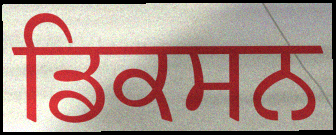
ਡਿਕਸਨ